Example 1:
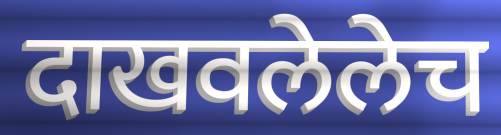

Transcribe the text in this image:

दाखवलेलेच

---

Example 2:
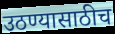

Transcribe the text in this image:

उठण्यासाठीच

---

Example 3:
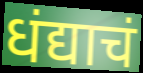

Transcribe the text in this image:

धंद्याचं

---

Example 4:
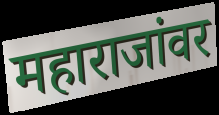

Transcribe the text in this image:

महाराजांवर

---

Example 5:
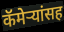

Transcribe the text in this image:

कॅमेऱ्यांसह